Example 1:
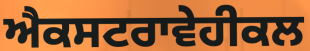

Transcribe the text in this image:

ਐਕਸਟਰਾਵੇਹੀਕਲ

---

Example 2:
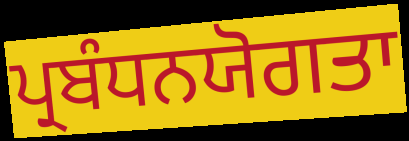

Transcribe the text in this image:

ਪ੍ਰਬੰਧਨਯੋਗਤਾ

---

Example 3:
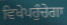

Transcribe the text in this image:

ਵਿਖੇਪਹੁੰਚੇਗਾ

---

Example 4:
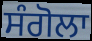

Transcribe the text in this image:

ਸੰਗੋਲਾ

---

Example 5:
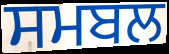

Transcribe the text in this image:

ਸਮਬਲ